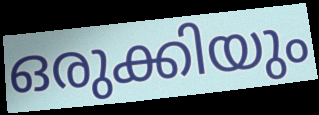
ഒരുക്കിയും